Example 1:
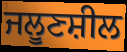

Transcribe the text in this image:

ਜਲੂਣਸ਼ੀਲ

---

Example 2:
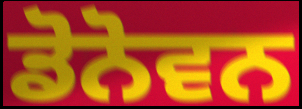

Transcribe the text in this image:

ਡੋਨੋਵਨ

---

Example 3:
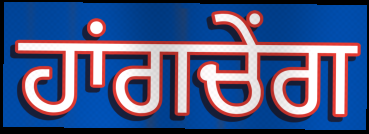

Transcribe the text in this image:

ਹਾਂਗਚੇਂਗ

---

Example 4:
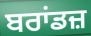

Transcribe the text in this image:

ਬਰਾਂਡਜ਼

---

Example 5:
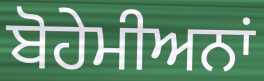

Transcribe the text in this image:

ਬੋਹੇਮੀਅਨਾਂ